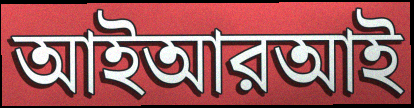
আইআরআই